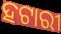
ହଟାରୀ